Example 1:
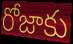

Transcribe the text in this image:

రోజాకు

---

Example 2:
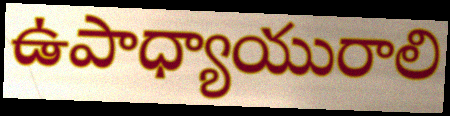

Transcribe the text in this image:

ఉపాధ్యాయురాలి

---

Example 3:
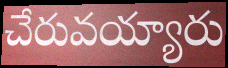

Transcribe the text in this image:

చేరువయ్యారు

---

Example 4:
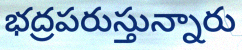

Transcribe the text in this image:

భద్రపరుస్తున్నారు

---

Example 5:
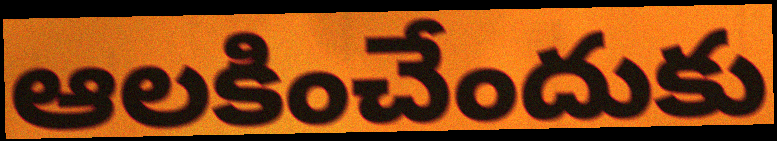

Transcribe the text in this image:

ఆలకించేందుకు